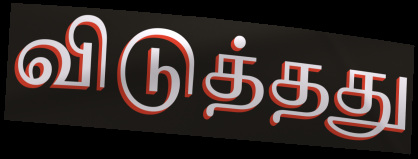
விடுத்தது